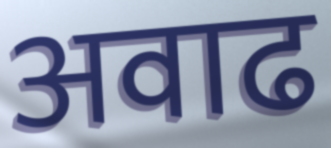
अवाढ